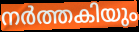
നർത്തകിയും